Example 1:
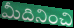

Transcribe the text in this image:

మీదినించి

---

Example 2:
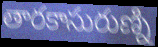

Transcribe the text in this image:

తారకాసురుణ్ని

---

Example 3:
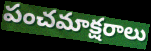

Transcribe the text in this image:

పంచమాక్షరాలు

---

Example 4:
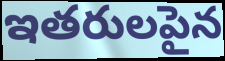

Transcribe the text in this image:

ఇతరులపైన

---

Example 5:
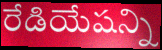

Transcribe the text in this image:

రేడియేషన్ని